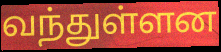
வந்துள்ளன